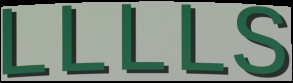
LLLLS